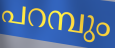
പറമ്പും